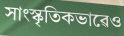
সাংস্কৃতিকভাৱেও